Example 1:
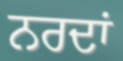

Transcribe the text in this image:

ਨਰਦਾਂ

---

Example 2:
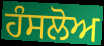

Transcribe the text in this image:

ਹੰਸਲੋਅ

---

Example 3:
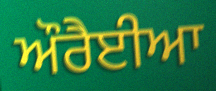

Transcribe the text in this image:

ਔਰੈਈਆ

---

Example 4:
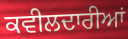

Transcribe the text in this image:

ਕਵੀਲਦਾਰੀਆਂ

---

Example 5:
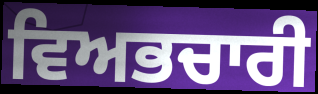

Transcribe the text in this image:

ਵਿਅਭਚਾਰੀ